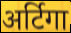
अर्टिगा